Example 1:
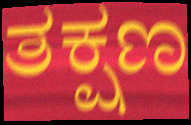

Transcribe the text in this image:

ತಕ್ಷಣ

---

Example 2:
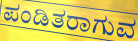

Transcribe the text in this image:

ಪಂಡಿತರಾಗುವ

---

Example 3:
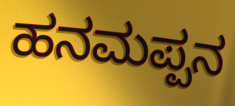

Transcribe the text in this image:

ಹನಮಪ್ಪನ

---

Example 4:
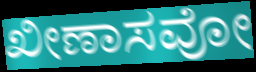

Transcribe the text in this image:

ಖೀಣಾಸವೋ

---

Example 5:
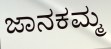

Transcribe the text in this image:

ಜಾನಕಮ್ಮ